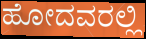
ಹೋದವರಲ್ಲಿ